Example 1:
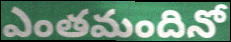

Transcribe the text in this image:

ఎంతమందినో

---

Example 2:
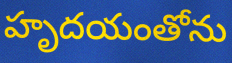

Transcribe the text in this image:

హృదయంతోను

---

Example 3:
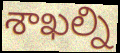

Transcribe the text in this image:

శాఖల్ని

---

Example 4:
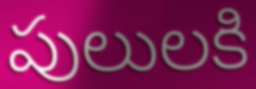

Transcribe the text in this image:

పులులకి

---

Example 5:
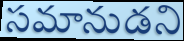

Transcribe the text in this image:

సమానుడని